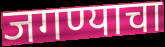
जगण्याचा